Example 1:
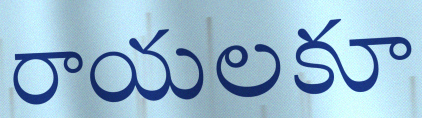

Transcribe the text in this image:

రాయలకూ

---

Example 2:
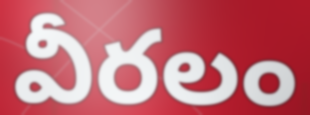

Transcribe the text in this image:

వీరలం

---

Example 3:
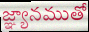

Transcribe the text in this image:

జ్ఞ్యానముతో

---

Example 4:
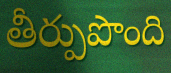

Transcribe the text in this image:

తీర్పుపొంది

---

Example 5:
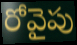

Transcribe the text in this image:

రోవైపు